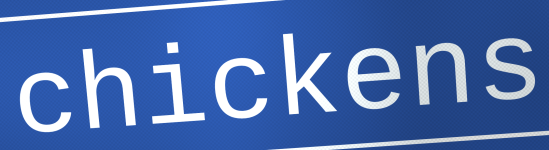
chickens